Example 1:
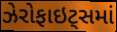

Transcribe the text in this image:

ઝેરોફાઇટ્સમાં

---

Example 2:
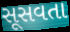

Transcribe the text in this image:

સૂસવતા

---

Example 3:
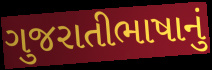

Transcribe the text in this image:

ગુજરાતીભાષાનું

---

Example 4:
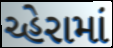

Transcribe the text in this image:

ચ્હેરામાં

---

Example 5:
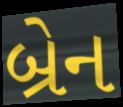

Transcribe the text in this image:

બ્રેન